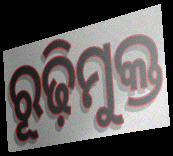
ରୂଢ଼ିମୁକ୍ତ